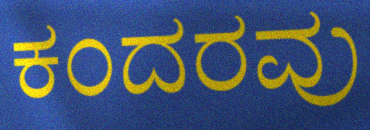
ಕಂದರವು